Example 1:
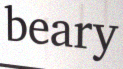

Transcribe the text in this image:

beary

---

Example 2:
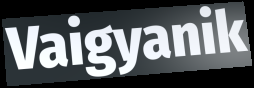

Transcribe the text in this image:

Vaigyanik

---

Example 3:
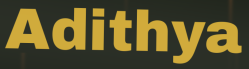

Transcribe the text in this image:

Adithya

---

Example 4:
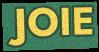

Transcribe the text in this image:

JOIE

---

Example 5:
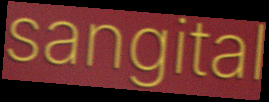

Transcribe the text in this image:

sangital